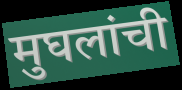
मुघलांची